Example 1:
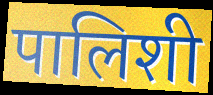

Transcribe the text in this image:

पालिशी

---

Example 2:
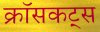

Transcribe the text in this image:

क्रॉसकट्स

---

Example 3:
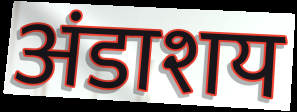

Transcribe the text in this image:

अंडाशय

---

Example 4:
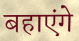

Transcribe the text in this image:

बहाएंगे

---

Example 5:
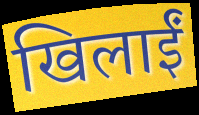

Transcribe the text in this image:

खिलाईं